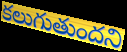
కలుగుతుందని